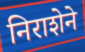
निराशेने